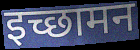
इच्छामन